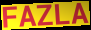
FAZLA